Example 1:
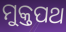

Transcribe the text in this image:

ମୁକ୍ତପଥ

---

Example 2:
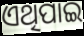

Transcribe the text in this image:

ଏଥିପାଇ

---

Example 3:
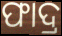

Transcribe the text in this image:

ଫାଦ୍ର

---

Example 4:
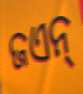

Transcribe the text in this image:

ଜଏନ୍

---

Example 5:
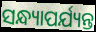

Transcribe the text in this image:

ସନ୍ଧ୍ୟାପର୍ଯ୍ୟନ୍ତ